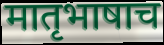
मातृभाषाच